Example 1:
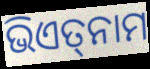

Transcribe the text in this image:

ଭିଏତ୍‌ନାମ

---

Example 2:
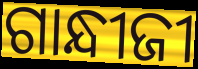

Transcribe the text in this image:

ଗାନ୍ଧୀଜୀ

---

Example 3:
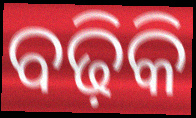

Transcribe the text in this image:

ବଢ଼ିକି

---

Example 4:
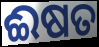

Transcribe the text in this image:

ଈଷତ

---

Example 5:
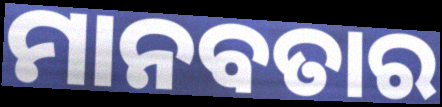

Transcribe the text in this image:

ମାନବତାର